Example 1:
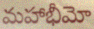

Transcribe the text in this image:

మహాభీమో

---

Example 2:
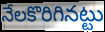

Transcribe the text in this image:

నేలకొరిగినట్టు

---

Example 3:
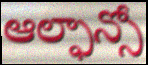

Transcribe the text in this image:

ఆల్ఫాన్సో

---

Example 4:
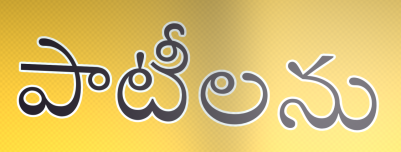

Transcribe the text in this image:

పాటీలను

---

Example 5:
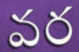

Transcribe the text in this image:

వర